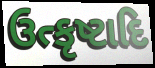
ઉત્કૃષ્ટાદિ